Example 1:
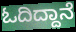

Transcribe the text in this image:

ಓದಿದ್ದಾನೆ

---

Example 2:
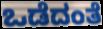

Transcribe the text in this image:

ಒಡೆದಂತೆ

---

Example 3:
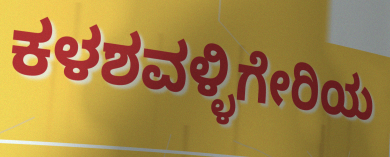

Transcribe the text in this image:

ಕಳಶವಳ್ಳಿಗೇರಿಯ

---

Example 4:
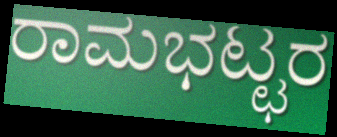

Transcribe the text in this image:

ರಾಮಭಟ್ಟರ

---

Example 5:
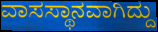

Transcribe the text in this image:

ವಾಸಸ್ಥಾನವಾಗಿದ್ದು